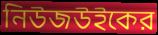
নিউজউইকের